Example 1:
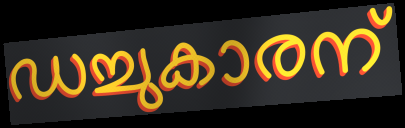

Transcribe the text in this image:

ഡച്ചുകാരന്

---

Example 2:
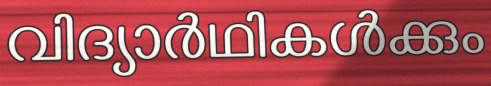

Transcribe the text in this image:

വിദ്യാർഥികൾക്കും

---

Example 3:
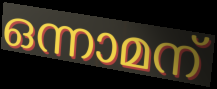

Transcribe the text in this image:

ഒന്നാമന്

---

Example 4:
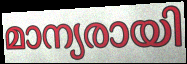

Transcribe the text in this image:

മാന്യരായി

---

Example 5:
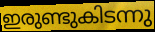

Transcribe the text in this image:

ഇരുണ്ടുകിടന്നു